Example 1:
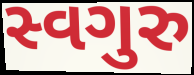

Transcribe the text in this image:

સ્વગુરુ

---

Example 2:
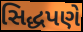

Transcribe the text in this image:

સિદ્ધપણે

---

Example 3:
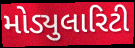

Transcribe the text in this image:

મોડ્યુલારિટી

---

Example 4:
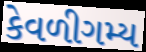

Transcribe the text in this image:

કેવળીગમ્ય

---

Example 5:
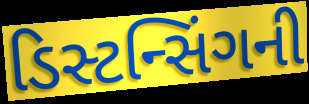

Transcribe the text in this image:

ડિસ્ટન્સિંગની